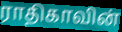
ராதிகாவின்